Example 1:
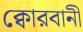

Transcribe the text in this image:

ক্বোরবানী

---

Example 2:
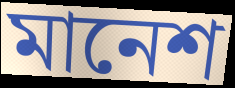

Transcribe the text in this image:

মানেশ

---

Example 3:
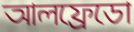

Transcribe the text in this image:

আলফ্রেডো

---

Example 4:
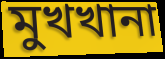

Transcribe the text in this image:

মুখখানা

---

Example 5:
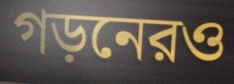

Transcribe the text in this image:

গড়নেরও